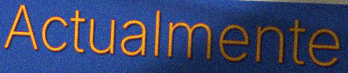
Actualmente